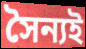
সৈন্যই